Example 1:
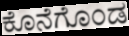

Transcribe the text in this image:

ಕೊನೆಗೊಂಡ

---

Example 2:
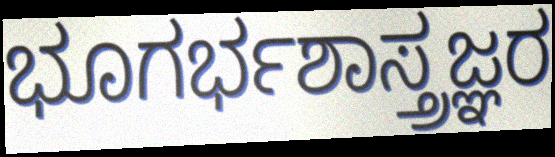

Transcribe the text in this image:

ಭೂಗರ್ಭಶಾಸ್ತ್ರಜ್ಞರ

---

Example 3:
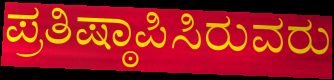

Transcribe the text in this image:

ಪ್ರತಿಷ್ಠಾಪಿಸಿರುವರು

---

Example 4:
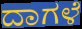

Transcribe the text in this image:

ದಾಗಳೆ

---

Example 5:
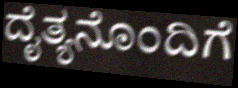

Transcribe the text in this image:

ದೈತ್ಯನೊಂದಿಗೆ